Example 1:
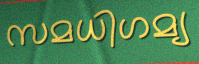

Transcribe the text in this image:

സമധിഗമ്യ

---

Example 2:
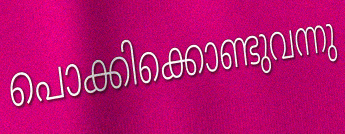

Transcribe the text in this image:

പൊക്കിക്കൊണ്ടുവന്നു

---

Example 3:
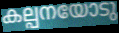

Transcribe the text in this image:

കല്പനയോടു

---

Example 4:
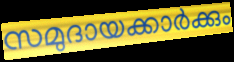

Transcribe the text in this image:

സമുദായക്കാർക്കും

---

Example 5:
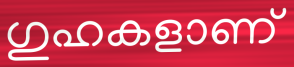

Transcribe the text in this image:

ഗുഹകളാണ്